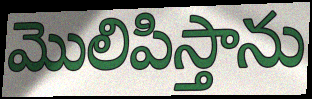
మొలిపిస్తాను